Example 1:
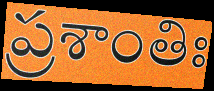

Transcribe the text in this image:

ప్రశాంతిః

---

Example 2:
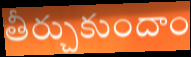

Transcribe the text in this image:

తీర్చుకుందాం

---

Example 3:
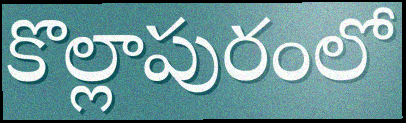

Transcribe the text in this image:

కొల్లాపురంలో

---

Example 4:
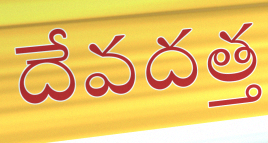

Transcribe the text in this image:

దేవదత్త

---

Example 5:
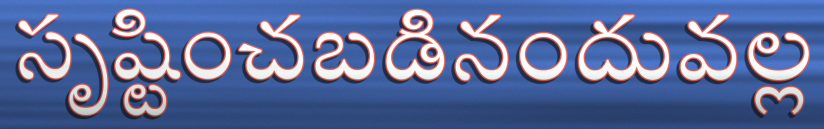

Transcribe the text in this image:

సృష్టించబడినందువల్ల